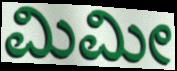
ಮಿಮೀ